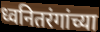
ध्वनितरंगांच्या